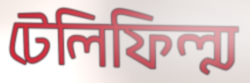
টেলিফিল্ম